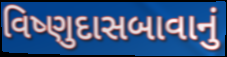
વિષ્ણુદાસબાવાનું